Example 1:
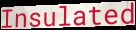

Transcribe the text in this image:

Insulated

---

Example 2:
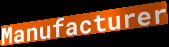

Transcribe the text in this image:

Manufacturer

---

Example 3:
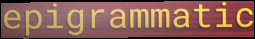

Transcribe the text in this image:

epigrammatic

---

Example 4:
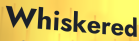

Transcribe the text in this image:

Whiskered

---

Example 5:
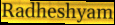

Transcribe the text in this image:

Radheshyam